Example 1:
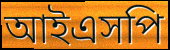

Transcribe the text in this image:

আইএসপি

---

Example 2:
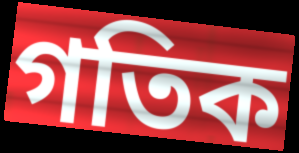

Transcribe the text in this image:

গতিক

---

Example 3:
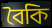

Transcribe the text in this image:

বৈকি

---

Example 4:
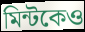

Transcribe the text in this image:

মিন্টকেও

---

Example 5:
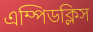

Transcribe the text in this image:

এম্পিডক্লিস